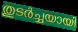
തുടർച്ചയായി